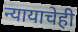
न्यायाचेही